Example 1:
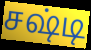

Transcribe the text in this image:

சஷ்டி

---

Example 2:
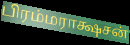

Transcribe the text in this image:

பிரம்மராக்ஷசன்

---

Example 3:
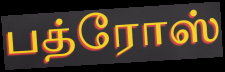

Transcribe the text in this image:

பத்ரோஸ்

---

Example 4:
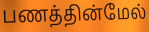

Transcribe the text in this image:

பணத்தின்மேல்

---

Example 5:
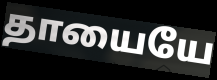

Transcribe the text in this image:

தாயையே